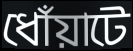
ধোঁয়াটে